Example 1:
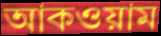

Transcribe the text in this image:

আকওয়াম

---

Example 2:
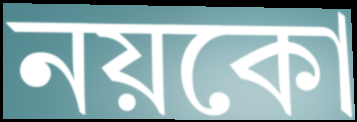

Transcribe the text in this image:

নয়কো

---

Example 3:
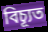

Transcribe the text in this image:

বিচ্যূত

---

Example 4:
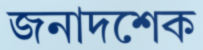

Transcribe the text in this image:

জনাদশেক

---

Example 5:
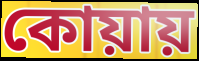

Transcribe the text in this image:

কোয়ায়